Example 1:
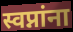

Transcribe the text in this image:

स्वप्नांना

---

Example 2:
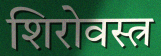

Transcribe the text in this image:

शिरोवस्त्र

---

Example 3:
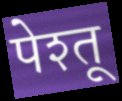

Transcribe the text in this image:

पेश्तू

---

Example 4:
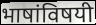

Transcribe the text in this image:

भाषांविषयी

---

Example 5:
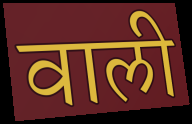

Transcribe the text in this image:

वाली